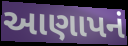
આણાપનં